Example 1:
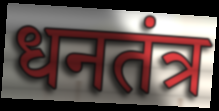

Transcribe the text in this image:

धनतंत्र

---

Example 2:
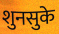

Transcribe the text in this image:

शुनसुके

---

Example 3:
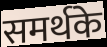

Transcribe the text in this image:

समर्थके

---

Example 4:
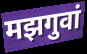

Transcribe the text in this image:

मझगुवां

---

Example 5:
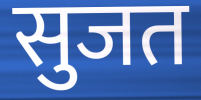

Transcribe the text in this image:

सुजत